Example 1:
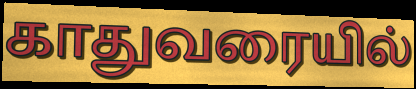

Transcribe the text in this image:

காதுவரையில்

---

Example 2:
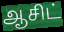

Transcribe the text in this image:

ஆசிட்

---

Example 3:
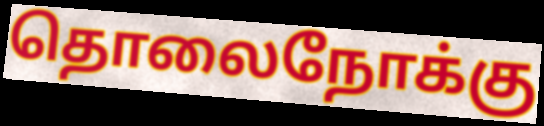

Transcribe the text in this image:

தொலைநோக்கு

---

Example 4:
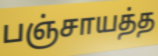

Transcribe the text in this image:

பஞ்சாயத்த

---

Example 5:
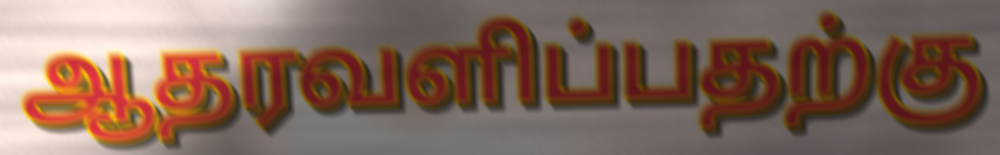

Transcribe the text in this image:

ஆதரவளிப்பதற்கு